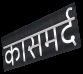
कासमर्द